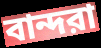
বান্দরা